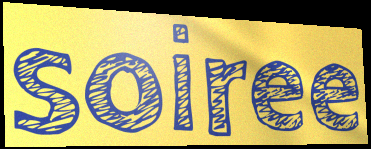
soiree